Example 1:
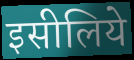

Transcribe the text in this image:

इसीलिये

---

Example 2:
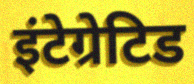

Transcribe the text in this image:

इंटेग्रेटिड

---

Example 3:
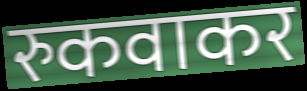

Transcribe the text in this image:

रुकवाकर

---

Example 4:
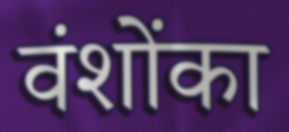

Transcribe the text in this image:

वंशोंका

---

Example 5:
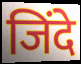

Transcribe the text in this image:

जिंदे